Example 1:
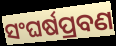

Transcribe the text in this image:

ସଂଘର୍ଷପ୍ରବଣ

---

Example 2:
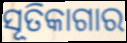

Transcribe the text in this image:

ସୂତିକାଗାର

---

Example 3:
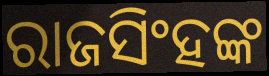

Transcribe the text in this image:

ରାଜସିଂହଙ୍କ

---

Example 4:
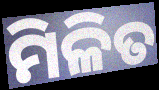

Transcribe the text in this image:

ମିଳିତ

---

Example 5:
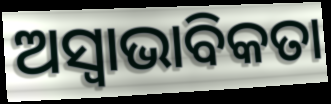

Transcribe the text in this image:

ଅସ୍ୱାଭାବିକତା